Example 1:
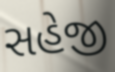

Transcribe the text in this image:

સહેજી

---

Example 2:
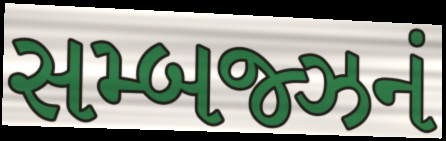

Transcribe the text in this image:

સમ્બજ્ઝનં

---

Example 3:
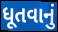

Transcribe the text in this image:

ધૂતવાનું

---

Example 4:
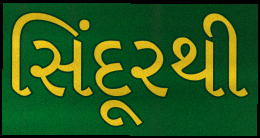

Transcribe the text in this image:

સિંદૂરથી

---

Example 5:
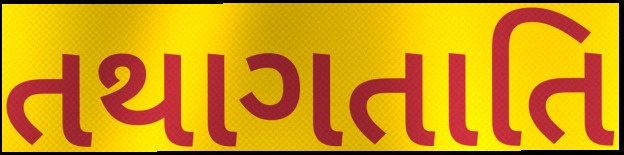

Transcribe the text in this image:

તથાગતાતિ